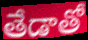
తేడాతో